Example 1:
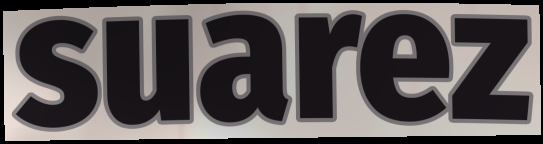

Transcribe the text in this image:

suarez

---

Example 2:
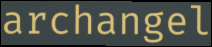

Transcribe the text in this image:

archangel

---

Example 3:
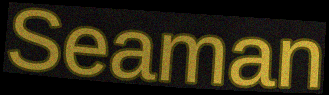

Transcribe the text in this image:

Seaman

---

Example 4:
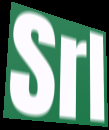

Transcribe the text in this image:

Srl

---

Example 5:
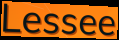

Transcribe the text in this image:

Lessee